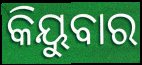
କିୟୁବାର